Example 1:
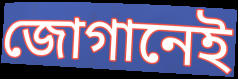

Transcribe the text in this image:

জোগানেই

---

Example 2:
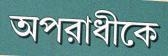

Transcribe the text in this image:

অপরাধীকে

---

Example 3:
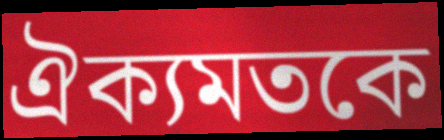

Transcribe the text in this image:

ঐক্যমতকে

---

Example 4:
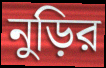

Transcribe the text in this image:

নুড়ির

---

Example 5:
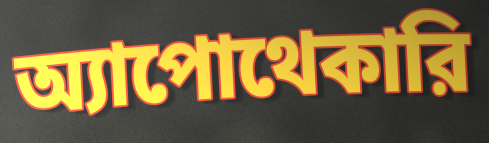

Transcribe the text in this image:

অ্যাপোথেকারি